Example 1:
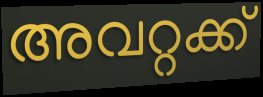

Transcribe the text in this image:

അവറ്റക്ക്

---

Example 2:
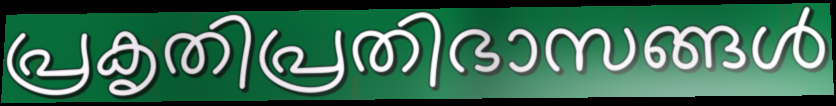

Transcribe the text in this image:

പ്രകൃതിപ്രതിഭാസങ്ങൾ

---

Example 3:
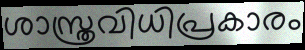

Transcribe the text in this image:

ശാസ്ത്രവിധിപ്രകാരം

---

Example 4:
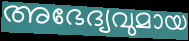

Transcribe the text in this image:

അഭേദ്യവുമായ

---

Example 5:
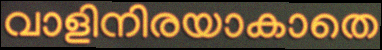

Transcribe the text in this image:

വാളിനിരയാകാതെ